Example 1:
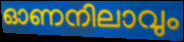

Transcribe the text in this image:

ഓണനിലാവും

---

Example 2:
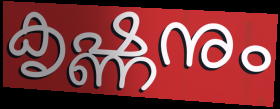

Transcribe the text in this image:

കൃഷ്ണനും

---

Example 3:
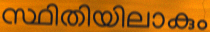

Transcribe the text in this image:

സ്ഥിതിയിലാകും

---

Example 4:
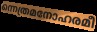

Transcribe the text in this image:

ന്നെത്രമനോഹരമീ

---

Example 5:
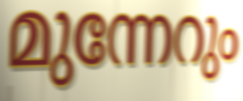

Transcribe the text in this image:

മുന്നേറും